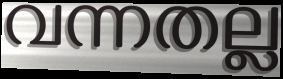
വന്നതല്ല